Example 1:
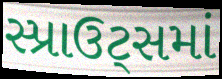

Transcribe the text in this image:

સ્પ્રાઉટ્સમાં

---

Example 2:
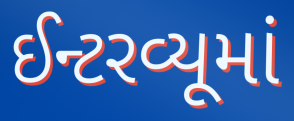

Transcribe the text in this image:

ઈન્ટરવ્યૂમાં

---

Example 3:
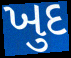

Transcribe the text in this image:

ખુદ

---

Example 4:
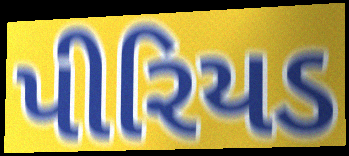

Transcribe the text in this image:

પીરિયડ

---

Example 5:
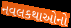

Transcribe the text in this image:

નવલકથાઓનો